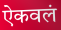
ऐकवलं